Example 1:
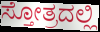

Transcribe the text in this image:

ಸ್ತೋತ್ರದಲ್ಲಿ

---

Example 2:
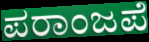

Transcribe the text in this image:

ಪರಾಂಜಪೆ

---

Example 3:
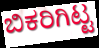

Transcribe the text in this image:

ಬಿಕರಿಗಿಟ್ಟ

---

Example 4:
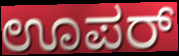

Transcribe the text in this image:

ಊಪರ್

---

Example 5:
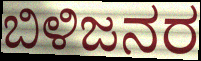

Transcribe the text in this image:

ಬಿಳಿಜನರ